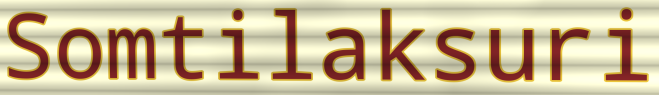
Somtilaksuri